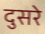
दुसरे